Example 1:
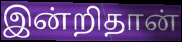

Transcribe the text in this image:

இன்றிதான்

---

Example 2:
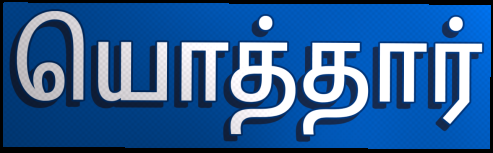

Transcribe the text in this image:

யொத்தார்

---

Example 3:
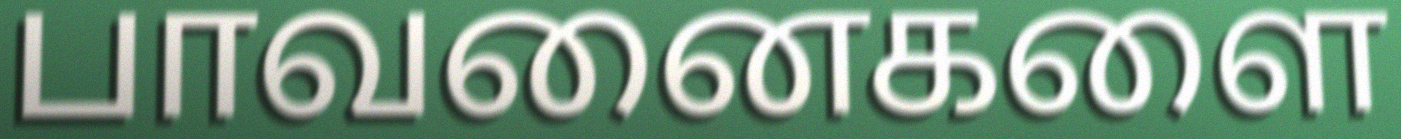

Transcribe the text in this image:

பாவனைகளை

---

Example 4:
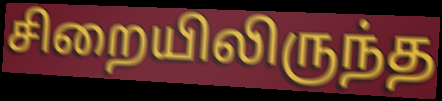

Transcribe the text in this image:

சிறையிலிருந்த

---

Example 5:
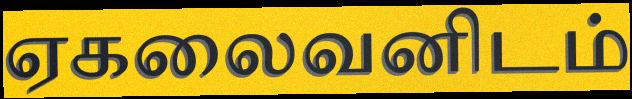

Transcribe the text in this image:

ஏகலைவனிடம்